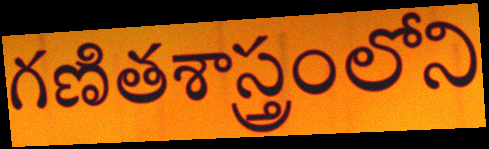
గణితశాస్త్రంలోని